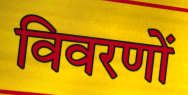
विवरणों